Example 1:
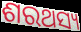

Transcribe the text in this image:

ଶରଥସ୍ୟ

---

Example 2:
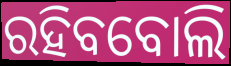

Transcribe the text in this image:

ରହିବବୋଲି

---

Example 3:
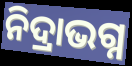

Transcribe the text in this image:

ନିଦ୍ରାଭଗ୍ନ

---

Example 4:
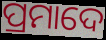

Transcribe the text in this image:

ପ୍ରମାଦେ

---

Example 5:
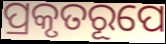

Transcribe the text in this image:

ପ୍ରକୃତରୂପେ